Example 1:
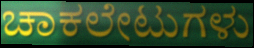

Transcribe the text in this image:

ಚಾಕಲೇಟುಗಳು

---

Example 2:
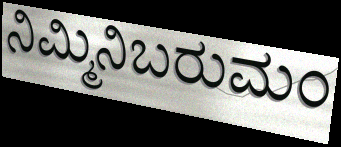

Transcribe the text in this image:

ನಿಮ್ಮಿನಿಬರುಮಂ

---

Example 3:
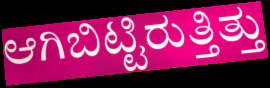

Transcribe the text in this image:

ಆಗಿಬಿಟ್ಟಿರುತ್ತಿತ್ತು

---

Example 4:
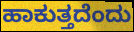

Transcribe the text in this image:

ಹಾಕುತ್ತದೆಂದು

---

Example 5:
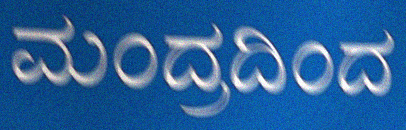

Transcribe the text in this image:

ಮಂದ್ರದಿಂದ